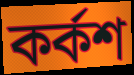
কৰ্কশ